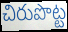
చిరుపొట్ట